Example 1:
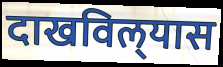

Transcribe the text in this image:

दाखविल्यास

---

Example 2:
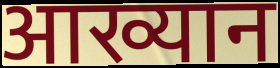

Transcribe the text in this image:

आख्यान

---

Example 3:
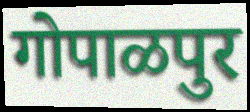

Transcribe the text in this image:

गोपाळपुर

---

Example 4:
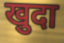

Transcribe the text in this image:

खुदा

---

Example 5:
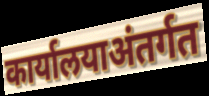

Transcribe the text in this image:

कार्यालयाअंतर्गत